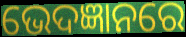
ଭେଦଜ୍ଞାନରେ